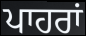
ਪਾਹਰਾਂ